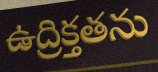
ఉద్రిక్తతను